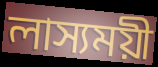
লাস্যময়ী